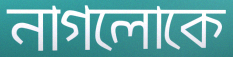
নাগলোকে